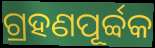
ଗ୍ରହଣପୂର୍ବ୍ବକ